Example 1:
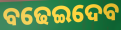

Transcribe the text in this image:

ବଢେଇଦେବ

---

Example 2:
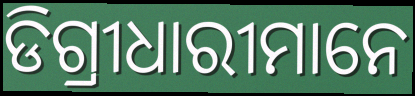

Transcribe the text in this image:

ଡିଗ୍ରୀଧାରୀମାନେ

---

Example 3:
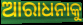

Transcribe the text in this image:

ଆରାଧନାକୁ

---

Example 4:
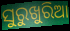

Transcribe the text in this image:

ସୁରୁଖୁରିଆ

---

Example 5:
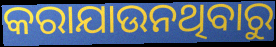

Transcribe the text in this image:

କରାଯାଉନଥିବାରୁ